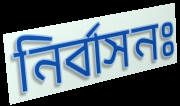
নির্বাসনঃ